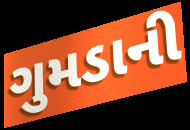
ગુમડાની